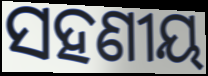
ସହଣୀୟ